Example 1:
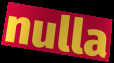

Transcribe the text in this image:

nulla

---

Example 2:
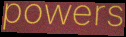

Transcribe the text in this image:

powers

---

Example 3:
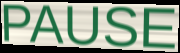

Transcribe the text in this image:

PAUSE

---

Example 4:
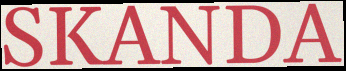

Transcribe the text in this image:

SKANDA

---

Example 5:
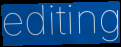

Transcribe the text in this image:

editing